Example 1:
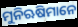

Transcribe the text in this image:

ମୁନିଋଷିମାନେ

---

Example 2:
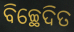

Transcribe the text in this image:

ବିଚ୍ଛେଦିତ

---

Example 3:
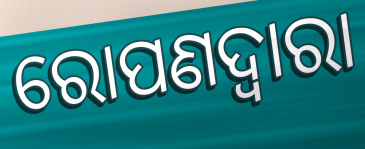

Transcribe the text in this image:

ରୋପଣଦ୍ୱାରା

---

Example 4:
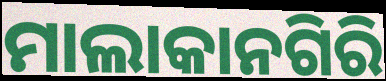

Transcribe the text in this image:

ମାଲାକାନଗିରି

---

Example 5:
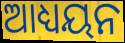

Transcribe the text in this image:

ଆଧ୍ୟୟନ